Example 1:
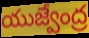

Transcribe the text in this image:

యుజ్వేంద్ర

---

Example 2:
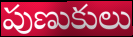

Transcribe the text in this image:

పుణుకులు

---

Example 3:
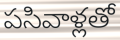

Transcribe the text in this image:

పసివాళ్లతో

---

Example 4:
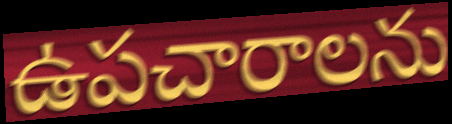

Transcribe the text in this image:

ఉపచారాలను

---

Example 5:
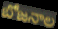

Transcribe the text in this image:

బోజనాల